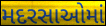
મદરસાઓમાં